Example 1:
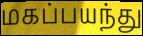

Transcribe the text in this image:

மகப்பயந்து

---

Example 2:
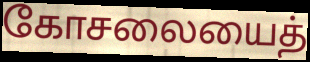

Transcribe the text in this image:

கோசலையைத்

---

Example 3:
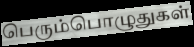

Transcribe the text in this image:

பெரும்பொழுதுகள்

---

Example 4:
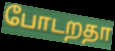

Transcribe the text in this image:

போடறதா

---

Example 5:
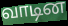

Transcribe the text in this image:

வாடின